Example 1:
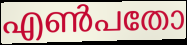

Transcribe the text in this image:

എൺപതോ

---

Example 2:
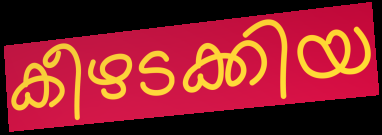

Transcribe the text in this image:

കീഴടക്കിയ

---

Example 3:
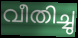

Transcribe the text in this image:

വീതിച്ചു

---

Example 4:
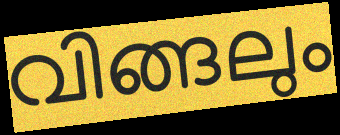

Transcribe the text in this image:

വിങ്ങലും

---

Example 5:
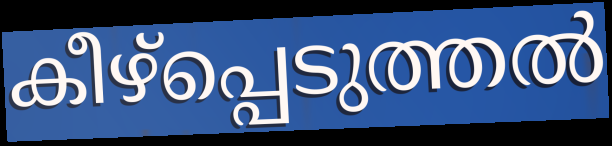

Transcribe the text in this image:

കീഴ്പ്പെടുത്തൽ